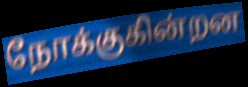
நோக்குகின்றன